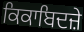
ਕਿਕਾਬਿਦਜ਼ੇ